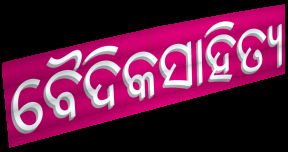
ବୈଦିକସାହିତ୍ୟ